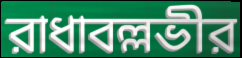
রাধাবল্লভীর